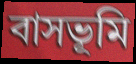
বাসভূমি